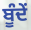
ਬੂੰਦੇਂ